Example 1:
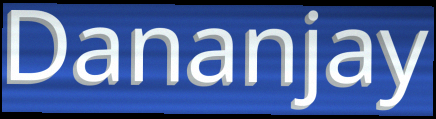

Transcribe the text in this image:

Dananjay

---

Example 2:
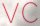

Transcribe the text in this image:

vc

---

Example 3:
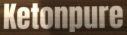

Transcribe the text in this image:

Ketonpure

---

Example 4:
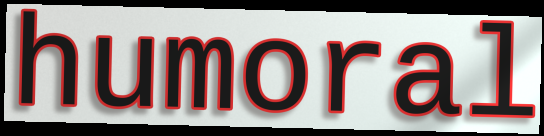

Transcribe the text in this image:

humoral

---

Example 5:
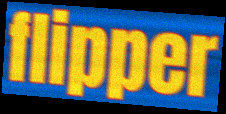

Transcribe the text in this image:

flipper